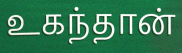
உகந்தான்